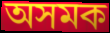
অসমক